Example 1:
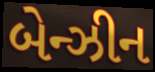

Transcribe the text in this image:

બેન્ઝીન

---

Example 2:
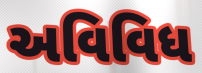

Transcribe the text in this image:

અવિવિધ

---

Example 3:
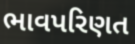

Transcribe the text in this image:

ભાવપરિણત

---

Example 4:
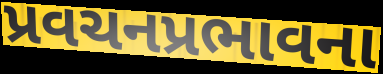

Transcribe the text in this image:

પ્રવચનપ્રભાવના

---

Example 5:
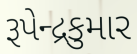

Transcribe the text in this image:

રૂપેન્દ્રકુમાર